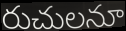
రుచులనూ